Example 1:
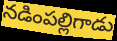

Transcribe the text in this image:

నడింపల్లిగాడు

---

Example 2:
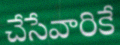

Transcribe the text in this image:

చేసేవారికే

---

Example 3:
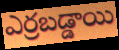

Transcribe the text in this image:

ఎర్రబడ్డాయి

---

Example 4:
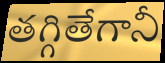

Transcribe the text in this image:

తగ్గితేగానీ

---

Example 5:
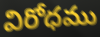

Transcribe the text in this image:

విరోధము